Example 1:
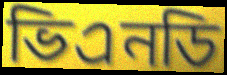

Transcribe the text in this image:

ভিএনডি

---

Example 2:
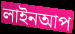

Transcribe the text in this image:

লাইনআপ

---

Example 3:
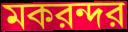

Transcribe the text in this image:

মকরন্দর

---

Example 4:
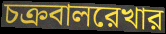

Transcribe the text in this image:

চক্রবালরেখার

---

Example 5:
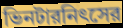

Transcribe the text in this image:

ভিনটারনিৎসের